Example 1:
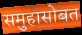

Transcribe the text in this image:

समुहासोबत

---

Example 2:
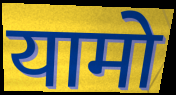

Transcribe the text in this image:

यामो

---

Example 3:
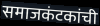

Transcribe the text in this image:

समाजकंटकांची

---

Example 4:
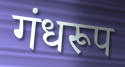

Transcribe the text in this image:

गंधरूप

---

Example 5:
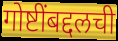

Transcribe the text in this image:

गोष्टींबद्दलची